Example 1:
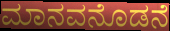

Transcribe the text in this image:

ಮಾನವನೊಡನೆ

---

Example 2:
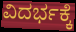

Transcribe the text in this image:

ವಿದರ್ಭಕ್ಕೆ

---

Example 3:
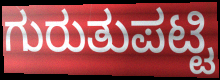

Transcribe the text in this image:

ಗುರುತುಪಟ್ಟಿ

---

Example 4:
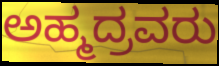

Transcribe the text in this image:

ಅಹ್ಮದ್ರವರು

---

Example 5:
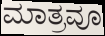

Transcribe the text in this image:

ಮಾತ್ರವೂ